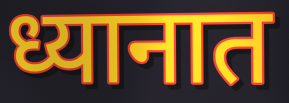
ध्यानात